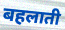
बहलाती